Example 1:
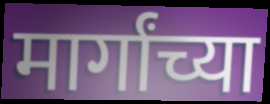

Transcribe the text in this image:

मार्गांच्या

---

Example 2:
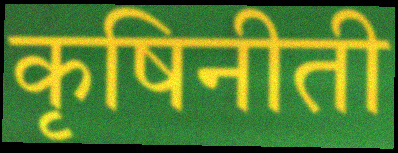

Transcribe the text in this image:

कृषिनीती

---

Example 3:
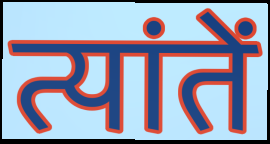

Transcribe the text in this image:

त्यांतें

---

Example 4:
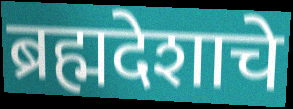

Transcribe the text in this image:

ब्रह्मदेशाचे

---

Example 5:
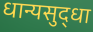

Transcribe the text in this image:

धान्यसुद्धा